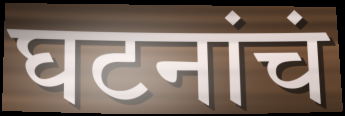
घटनांचं